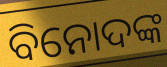
ବିନୋଦଙ୍କ